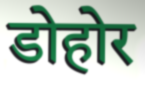
डोहोर